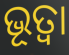
ଭୂତ୍ଵା